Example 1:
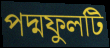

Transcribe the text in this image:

পদ্মফুলটি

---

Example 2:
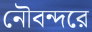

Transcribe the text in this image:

নৌবন্দরে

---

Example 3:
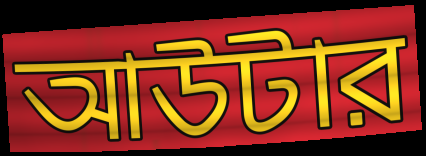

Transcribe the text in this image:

আউটার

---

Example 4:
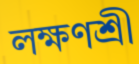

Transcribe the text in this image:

লক্ষণশ্রী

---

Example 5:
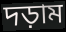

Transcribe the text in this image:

দড়াম